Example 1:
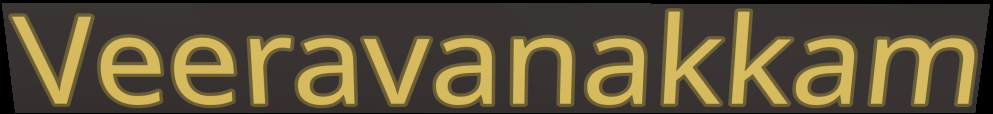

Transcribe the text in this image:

Veeravanakkam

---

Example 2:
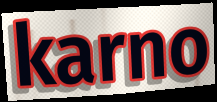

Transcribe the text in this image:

karno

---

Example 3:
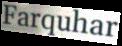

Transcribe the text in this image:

Farquhar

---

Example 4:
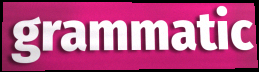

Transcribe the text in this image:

grammatic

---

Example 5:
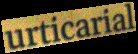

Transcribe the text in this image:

urticarial